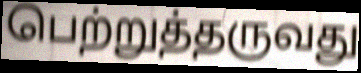
பெற்றுத்தருவது